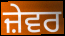
ਜ਼ੇਵਰ